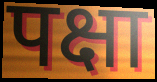
पक्षा